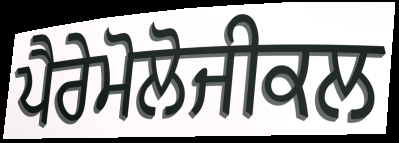
ਪੈਰੇਮੋਲੋਜੀਕਲ